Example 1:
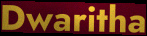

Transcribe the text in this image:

Dwaritha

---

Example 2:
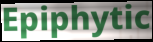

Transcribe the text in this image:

Epiphytic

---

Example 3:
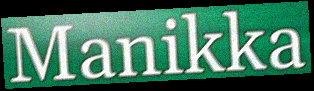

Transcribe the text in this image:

Manikka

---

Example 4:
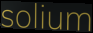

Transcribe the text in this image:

solium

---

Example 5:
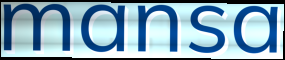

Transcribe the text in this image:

mansa